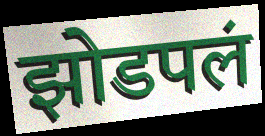
झोडपलं